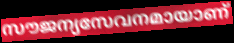
സൗജന്യസേവനമായാണ്